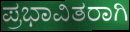
ಪ್ರಭಾವಿತರಾಗಿ